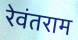
रेवंतराम